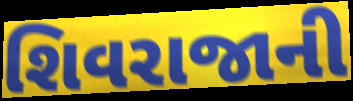
શિવરાજાની